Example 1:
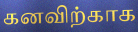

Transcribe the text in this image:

கனவிற்காக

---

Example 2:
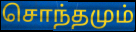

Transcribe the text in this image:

சொந்தமும்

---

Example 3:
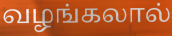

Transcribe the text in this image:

வழங்கலால்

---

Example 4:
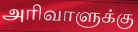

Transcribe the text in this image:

அரிவாளுக்கு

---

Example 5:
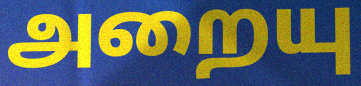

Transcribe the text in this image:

அறையு